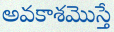
అవకాశమొస్తే